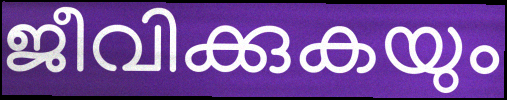
ജീവിക്കുകയും